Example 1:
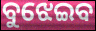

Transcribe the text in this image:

ବୁଝେଇବ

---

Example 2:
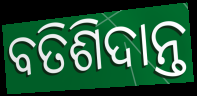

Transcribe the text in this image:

ବତିଶିଦାନ୍ତ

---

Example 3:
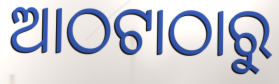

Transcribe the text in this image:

ଆଠଟାଠାରୁ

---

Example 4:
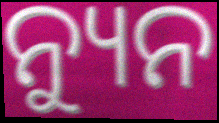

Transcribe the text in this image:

ନ୍ୟୁନ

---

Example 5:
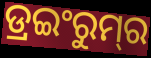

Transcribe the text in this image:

ଡ୍ରଇଂରୁମ୍‌ର